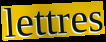
lettres